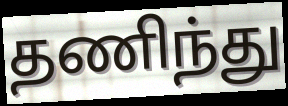
தணிந்து